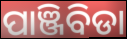
ପାଞ୍ଜିବିଡା